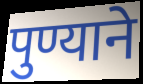
पुण्याने